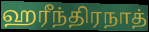
ஹரீந்திரநாத்